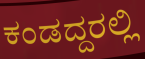
ಕಂಡದ್ದರಲ್ಲಿ